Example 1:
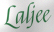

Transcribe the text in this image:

Laljee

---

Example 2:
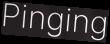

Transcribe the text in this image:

Pinging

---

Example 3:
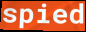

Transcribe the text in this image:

spied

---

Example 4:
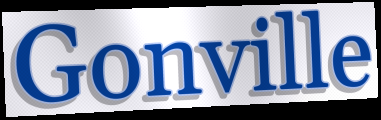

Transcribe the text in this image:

Gonville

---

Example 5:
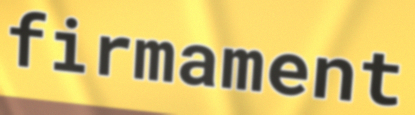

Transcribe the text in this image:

firmament